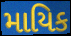
માયિક